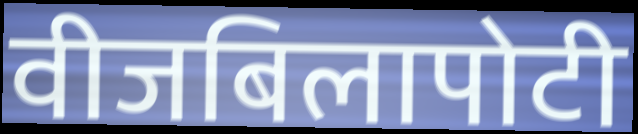
वीजबिलापोटी